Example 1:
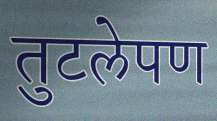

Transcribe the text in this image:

तुटलेपण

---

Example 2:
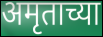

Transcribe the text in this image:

अमृताच्या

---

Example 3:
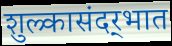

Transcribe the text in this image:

शुल्कासंदर्भात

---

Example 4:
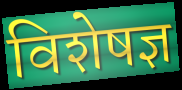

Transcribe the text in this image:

विशेषज्ञ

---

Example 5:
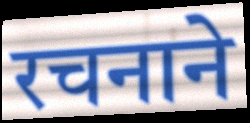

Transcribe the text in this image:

रचनाने